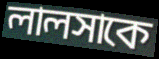
লালসাকে